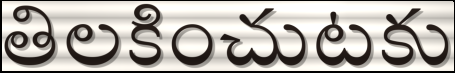
తిలకించుటకు